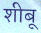
शीबू